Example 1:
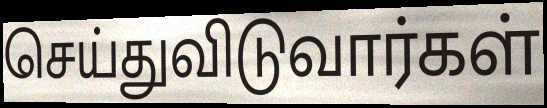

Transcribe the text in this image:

செய்துவிடுவார்கள்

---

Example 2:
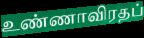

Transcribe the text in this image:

உண்ணாவிரதப்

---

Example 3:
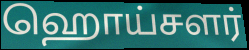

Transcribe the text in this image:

ஹொய்சளர்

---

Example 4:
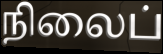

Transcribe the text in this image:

நிலைப்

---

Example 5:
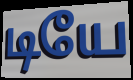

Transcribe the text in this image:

டியே